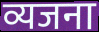
व्यजना